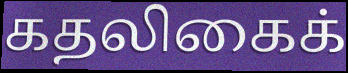
கதலிகைக்